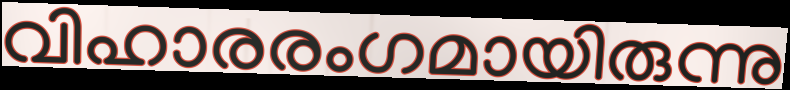
വിഹാരരംഗമായിരുന്നു